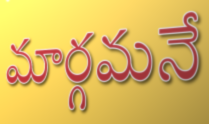
మార్గమనే